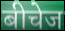
बीचेज